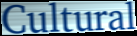
Cultural